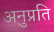
अनुप्रति